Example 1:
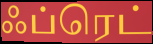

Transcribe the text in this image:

ஃப்ரெட்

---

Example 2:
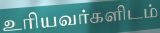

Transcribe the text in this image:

உரியவர்களிடம்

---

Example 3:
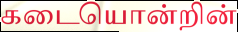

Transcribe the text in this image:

கடையொன்றின்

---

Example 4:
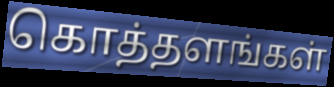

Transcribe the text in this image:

கொத்தளங்கள்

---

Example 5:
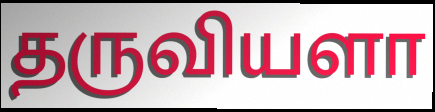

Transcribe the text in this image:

தருவியளா